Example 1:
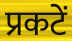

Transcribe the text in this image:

प्रकटें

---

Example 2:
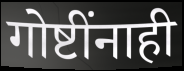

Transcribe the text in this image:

गोष्टींनाही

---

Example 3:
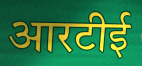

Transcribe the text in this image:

आरटीई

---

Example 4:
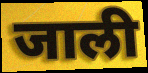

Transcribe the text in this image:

जाली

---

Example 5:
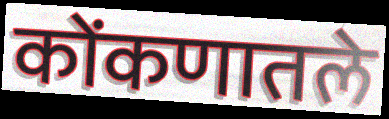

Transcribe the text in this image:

कोंकणातले